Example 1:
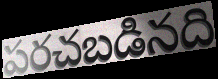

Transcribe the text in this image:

పరచబడినది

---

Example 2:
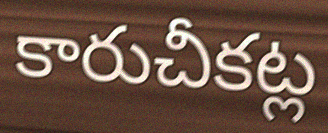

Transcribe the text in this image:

కారుచీకట్ల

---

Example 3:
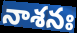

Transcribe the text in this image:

నాశనః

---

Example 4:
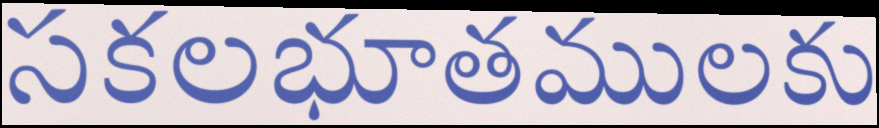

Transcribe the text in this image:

సకలభూతములకు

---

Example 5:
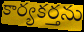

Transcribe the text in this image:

కార్యకర్తను